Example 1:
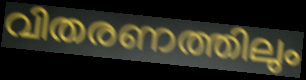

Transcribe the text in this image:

വിതരണത്തിലും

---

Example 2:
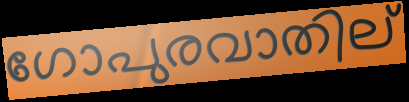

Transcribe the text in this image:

ഗോപുരവാതില്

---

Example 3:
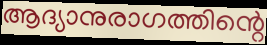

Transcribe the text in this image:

ആദ്യാനുരാഗത്തിന്റെ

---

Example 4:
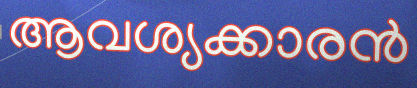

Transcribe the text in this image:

ആവശ്യക്കാരൻ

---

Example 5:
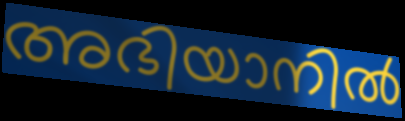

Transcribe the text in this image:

അഭിയാനിൽ